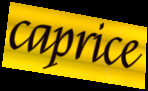
caprice